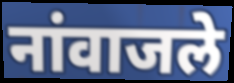
नांवाजले